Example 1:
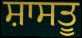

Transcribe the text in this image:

ਸ਼ਾਸਤੂ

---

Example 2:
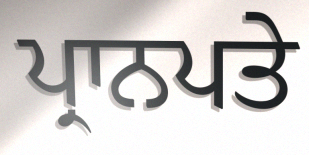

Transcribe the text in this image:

ਪ੍ਰਾਨਪਤੇ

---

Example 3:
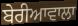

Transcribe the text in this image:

ਬੇਰੀਆਵਾਲਾ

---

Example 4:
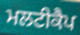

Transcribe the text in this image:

ਮਲਟੀਕੈਪ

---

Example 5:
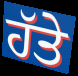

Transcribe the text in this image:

ਹੱਤੇ